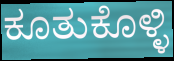
ಕೂತುಕೊಳ್ಳಿ